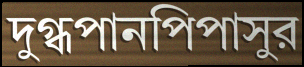
দুগ্ধপানপিপাসুর